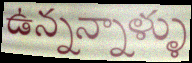
ఉన్నన్నాళ్ళు